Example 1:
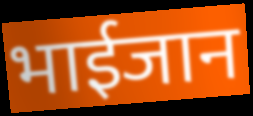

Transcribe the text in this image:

भाईजान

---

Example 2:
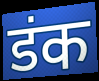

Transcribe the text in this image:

डंक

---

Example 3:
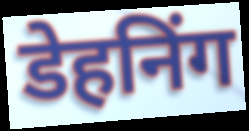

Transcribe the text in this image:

डेहनिंग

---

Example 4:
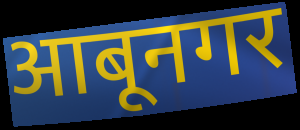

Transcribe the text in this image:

आबूनगर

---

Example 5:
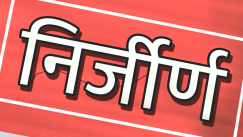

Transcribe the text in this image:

निर्जीर्ण